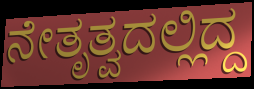
ನೇತೃತ್ವದಲ್ಲಿದ್ದ